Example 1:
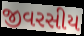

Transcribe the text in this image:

જીવરસીય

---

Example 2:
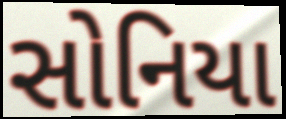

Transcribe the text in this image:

સોનિયા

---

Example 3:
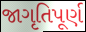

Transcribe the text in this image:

જાગૃતિપૂર્ણ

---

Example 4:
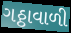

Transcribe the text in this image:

ગઠ્ઠાવાળી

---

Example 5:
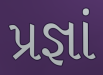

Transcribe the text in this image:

પ્રજ્ઞાં